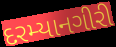
દરમ્યાનગીરી